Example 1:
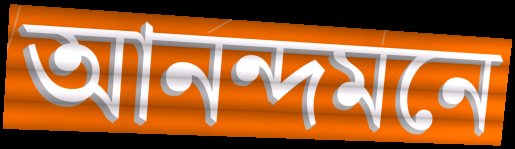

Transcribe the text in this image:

আনন্দমনে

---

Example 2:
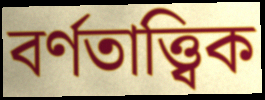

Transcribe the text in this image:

বৰ্ণতাত্ত্বিক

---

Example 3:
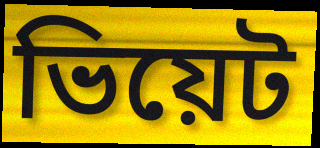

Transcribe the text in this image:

ভিয়েট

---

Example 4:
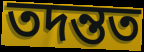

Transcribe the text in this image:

তদন্তত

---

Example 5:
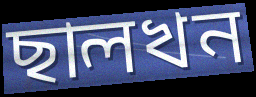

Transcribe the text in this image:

ছালখন